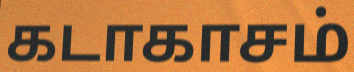
கடாகாசம்